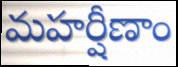
మహర్షీణాం